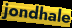
jondhale